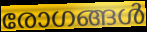
രോഗങ്ങൾ